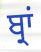
ਬ੍ਰਾਂ